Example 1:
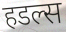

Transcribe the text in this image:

हडल्स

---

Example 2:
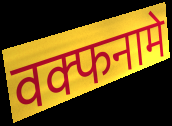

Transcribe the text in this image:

वक्फनामे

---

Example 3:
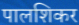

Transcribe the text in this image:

पालशिकर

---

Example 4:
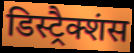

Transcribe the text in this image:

डिस्ट्रैक्शंस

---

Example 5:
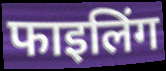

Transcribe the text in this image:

फाइलिंग